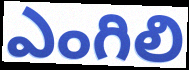
ఎంగిలి